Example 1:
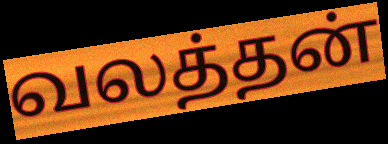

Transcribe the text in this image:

வலத்தன்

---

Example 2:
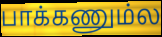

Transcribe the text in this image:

பாக்கணும்ல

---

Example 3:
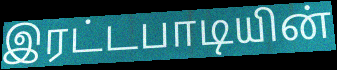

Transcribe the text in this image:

இரட்டபாடியின்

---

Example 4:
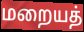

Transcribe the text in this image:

மறையத்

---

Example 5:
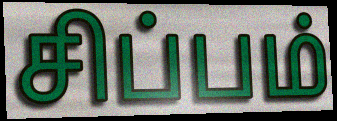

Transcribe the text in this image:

சிப்பம்